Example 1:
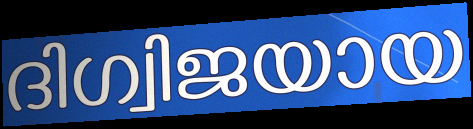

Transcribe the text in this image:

ദിഗ്വിജയായ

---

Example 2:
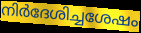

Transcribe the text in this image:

നിർദേശിച്ചശേഷം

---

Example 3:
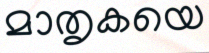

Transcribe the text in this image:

മാതൃകയെ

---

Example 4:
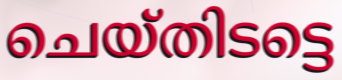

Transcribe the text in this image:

ചെയ്തിടട്ടെ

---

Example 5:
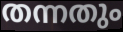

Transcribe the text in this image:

തന്നതും